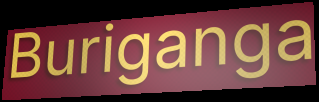
Buriganga